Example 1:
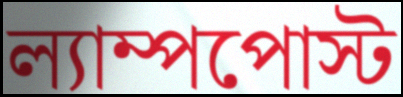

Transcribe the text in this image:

ল্যাম্পপোস্ট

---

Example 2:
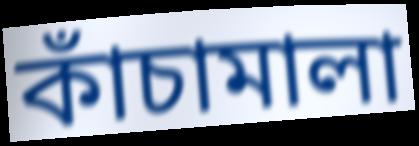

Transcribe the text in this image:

কাঁচামালা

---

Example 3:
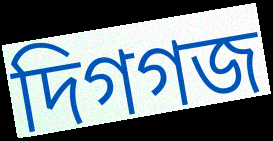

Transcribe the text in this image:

দিগগজ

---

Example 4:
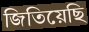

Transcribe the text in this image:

জিতিয়েছি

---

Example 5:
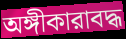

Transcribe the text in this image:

অঙ্গীকারাবদ্ধ